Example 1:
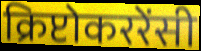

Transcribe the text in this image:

क्रिप्टोकररेंसी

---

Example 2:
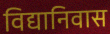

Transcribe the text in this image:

विद्यानिवास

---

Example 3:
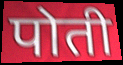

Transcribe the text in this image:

पोती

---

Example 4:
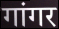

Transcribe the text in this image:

गांगर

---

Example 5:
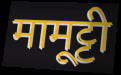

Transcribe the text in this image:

मामूट्टी